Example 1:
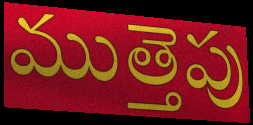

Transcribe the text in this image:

ముత్తెపు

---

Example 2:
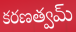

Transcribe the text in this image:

కరణత్వమ్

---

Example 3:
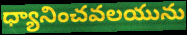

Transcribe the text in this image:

ధ్యానించవలయును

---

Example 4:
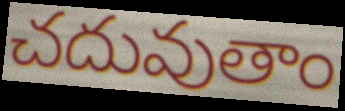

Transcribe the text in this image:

చదువుతాం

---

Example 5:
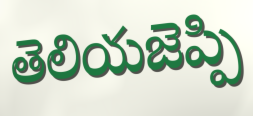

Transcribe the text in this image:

తెలియజెప్పి